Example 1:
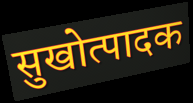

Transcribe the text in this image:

सुखोत्पादक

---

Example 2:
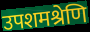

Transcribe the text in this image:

उपशमश्रेणि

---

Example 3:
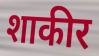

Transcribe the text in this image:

शाकीर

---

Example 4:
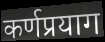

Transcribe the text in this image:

कर्णप्रयाग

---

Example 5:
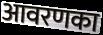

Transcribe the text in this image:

आवरणका